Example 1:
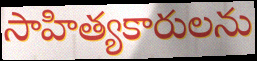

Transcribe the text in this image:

సాహిత్యకారులను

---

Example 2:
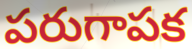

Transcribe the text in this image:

పరుగాపక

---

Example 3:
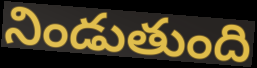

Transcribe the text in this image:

నిండుతుంది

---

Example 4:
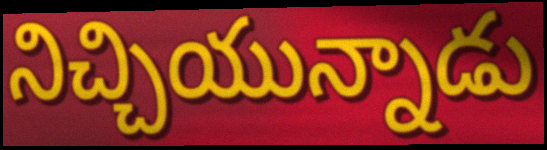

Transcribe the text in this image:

నిచ్చియున్నాడు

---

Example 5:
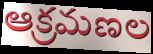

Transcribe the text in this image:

ఆక్రమణల